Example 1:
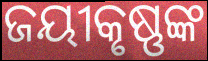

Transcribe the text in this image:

ଜୟୀକୃଷ୍ଣଙ୍କ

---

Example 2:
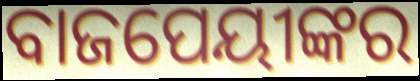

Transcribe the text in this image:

ବାଜପେୟୀଙ୍କର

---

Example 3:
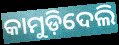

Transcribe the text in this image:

କାମୁଡ଼ିଦେଲି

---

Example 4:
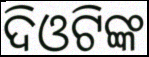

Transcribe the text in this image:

ଦିଓଟିଙ୍କ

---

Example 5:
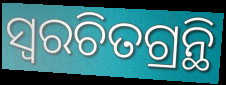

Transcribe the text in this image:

ସ୍ଵରଚିତଗ୍ରନ୍ଥି